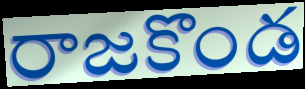
రాజకొండ